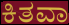
ಕಿತವಾ